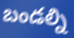
బండల్ని